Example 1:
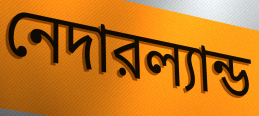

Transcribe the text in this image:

নেদারল্যান্ড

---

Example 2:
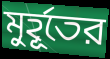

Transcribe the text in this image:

মুর্হূতের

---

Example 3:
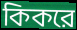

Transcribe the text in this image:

কিকরে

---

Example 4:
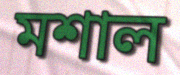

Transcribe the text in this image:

মশাল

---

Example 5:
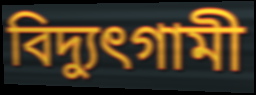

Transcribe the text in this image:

বিদ্যুৎগামী